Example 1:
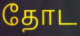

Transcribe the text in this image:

தோட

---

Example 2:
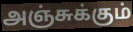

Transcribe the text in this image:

அஞ்சுக்கும்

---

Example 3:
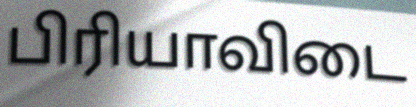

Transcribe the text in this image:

பிரியாவிடை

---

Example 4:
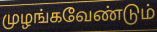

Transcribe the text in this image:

முழங்கவேண்டும்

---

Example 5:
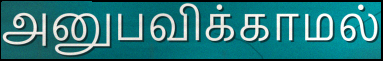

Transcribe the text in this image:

அனுபவிக்காமல்